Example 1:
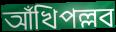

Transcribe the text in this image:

আঁখিপল্লব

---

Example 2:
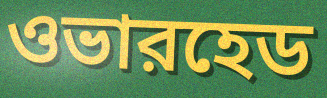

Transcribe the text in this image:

ওভারহেড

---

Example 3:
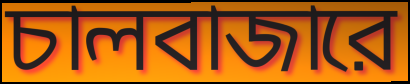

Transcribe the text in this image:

চালবাজারে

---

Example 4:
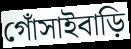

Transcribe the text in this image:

গোঁসাইবাড়ি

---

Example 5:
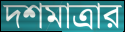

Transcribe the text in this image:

দশমাত্রার